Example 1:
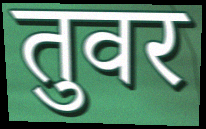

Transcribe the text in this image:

तुवर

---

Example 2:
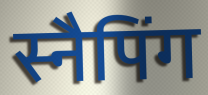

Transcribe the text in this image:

स्नैपिंग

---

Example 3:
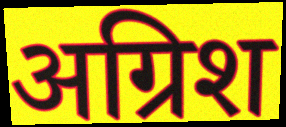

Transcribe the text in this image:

अग्रिश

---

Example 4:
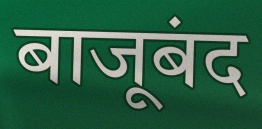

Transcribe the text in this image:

बाजूबंद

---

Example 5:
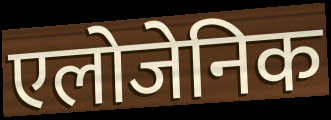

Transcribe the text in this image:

एलोजेनिक